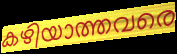
കഴിയാത്തവരെ